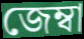
জেম্বা